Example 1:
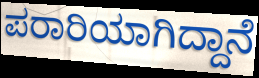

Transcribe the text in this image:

ಪರಾರಿಯಾಗಿದ್ದಾನೆ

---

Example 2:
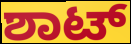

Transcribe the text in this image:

ಶಾಟ್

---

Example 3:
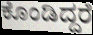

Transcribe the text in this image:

ಕೊಂಡಿದ್ದರೆ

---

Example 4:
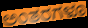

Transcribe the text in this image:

ಅಂತರಗಳೂ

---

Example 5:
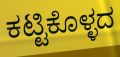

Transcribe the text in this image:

ಕಟ್ಟಿಕೊಳ್ಳದ